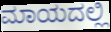
ಮಾಯದಲ್ಲಿ